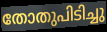
തോതുപിടിച്ചു